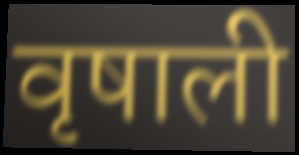
वृषाली